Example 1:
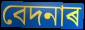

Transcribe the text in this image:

বেদনাৰ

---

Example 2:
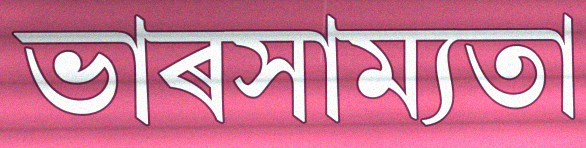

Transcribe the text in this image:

ভাৰসাম্যতা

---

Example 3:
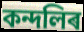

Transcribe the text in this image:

কন্দলিৰ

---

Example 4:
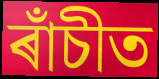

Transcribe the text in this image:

ৰাঁচীত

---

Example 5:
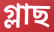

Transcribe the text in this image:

গ্লাছ